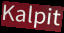
Kalpit